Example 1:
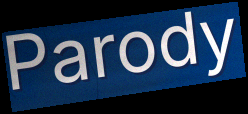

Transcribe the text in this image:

Parody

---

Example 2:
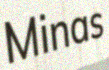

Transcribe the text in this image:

Minas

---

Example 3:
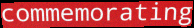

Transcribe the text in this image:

commemorating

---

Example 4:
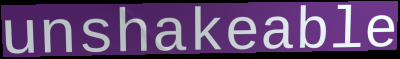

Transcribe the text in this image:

unshakeable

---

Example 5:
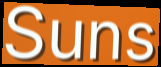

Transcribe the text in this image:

Suns